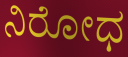
ನಿರೋಧ